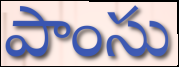
పాంసు